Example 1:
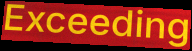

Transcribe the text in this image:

Exceeding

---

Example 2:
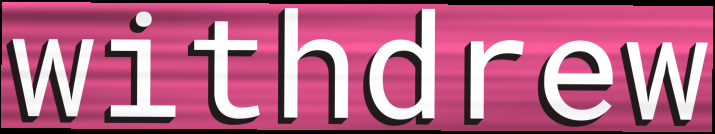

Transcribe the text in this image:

withdrew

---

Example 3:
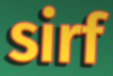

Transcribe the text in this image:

sirf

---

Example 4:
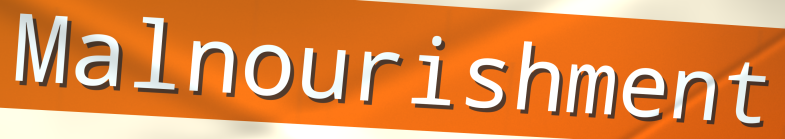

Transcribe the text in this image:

Malnourishment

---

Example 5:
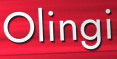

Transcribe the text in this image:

Olingi